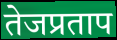
तेजप्रताप